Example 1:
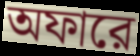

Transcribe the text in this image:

অফারে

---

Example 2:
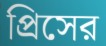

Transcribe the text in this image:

প্রিসের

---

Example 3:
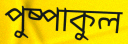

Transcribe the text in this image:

পুষ্পাকুল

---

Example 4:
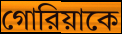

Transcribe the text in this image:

গোরিয়াকে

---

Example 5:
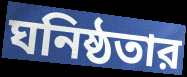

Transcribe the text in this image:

ঘনিষ্ঠতার